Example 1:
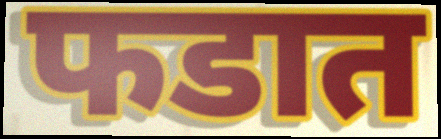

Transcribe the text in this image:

फडात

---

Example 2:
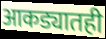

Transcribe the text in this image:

आकड्यातही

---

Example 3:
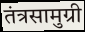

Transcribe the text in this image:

तंत्रसामुग्री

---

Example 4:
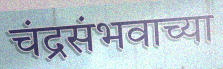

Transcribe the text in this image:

चंद्रसंभवाच्या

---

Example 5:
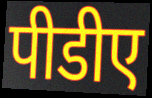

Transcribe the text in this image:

पीडीए